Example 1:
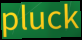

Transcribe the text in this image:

pluck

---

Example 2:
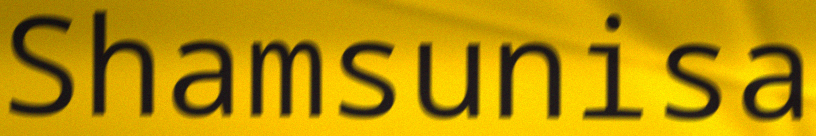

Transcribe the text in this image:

Shamsunisa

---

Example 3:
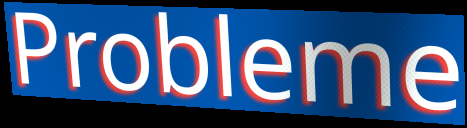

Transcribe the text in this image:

Probleme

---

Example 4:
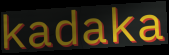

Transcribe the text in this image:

kadaka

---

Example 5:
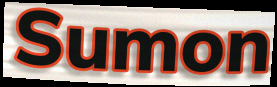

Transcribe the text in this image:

Sumon